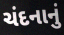
ચંદનાનું